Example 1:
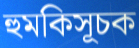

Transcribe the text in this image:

হুমকিসূচক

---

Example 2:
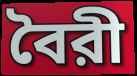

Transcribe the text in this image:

বৈরী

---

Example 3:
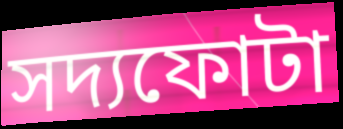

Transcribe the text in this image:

সদ্যফোটা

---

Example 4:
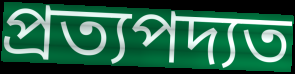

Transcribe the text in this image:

প্রত্যপদ্যত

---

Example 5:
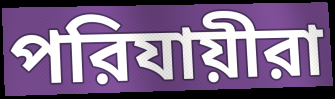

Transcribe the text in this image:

পরিযায়ীরা